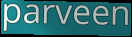
parveen